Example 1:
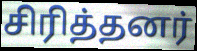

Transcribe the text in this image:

சிரித்தனர்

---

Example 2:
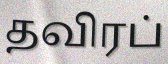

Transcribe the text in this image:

தவிரப்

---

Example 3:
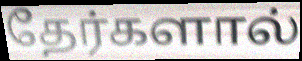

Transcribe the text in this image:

தேர்களால்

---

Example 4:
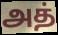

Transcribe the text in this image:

அத்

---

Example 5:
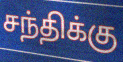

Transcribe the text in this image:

சந்திக்கு